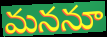
మననూ